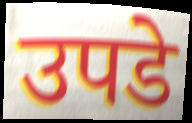
उपडे